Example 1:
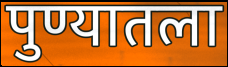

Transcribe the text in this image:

पुण्यातला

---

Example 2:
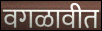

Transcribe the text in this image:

वगळावीत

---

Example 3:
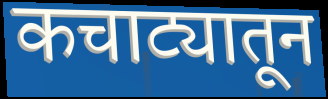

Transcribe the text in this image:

कचाट्यातून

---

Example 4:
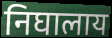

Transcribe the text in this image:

निघालाय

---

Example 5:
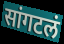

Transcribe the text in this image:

सांगटलं